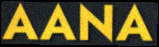
AANA